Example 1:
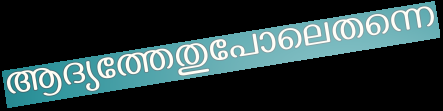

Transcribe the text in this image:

ആദ്യത്തേതുപോലെതന്നെ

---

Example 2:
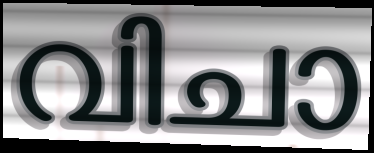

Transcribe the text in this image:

വിചാ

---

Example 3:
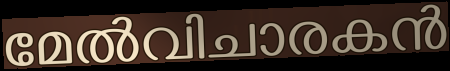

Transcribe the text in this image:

മേൽവിചാരകൻ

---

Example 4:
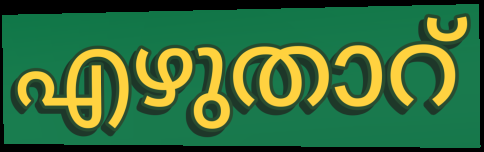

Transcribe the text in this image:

എഴുതാറ്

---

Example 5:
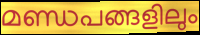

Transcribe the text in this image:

മണ്ഡപങ്ങളിലും